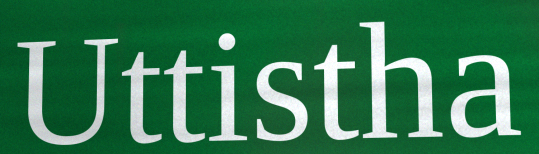
Uttistha